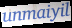
unmaiyil